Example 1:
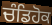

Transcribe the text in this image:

ਚੰਡਿਹੋਕ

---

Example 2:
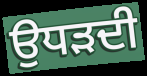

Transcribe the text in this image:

ਉਧੜਦੀ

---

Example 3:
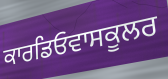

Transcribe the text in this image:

ਕਾਰਡਿਓਵਾਸਕੂਲਰ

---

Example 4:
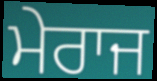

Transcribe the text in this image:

ਮੇਰਾਜ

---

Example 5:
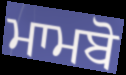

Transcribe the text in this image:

ਮਾਮਬੋ